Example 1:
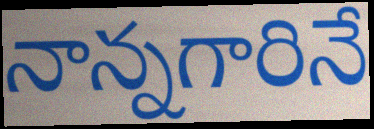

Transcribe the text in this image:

నాన్నగారినే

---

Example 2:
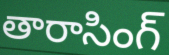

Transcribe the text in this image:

తారాసింగ్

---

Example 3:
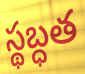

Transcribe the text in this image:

స్థబ్ధత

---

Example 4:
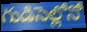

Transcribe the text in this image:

గుడిసెల్లోనో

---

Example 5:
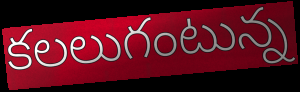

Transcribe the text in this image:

కలలుగంటున్న